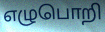
எழுபொறி